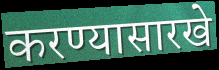
करण्यासारखे